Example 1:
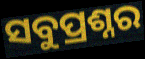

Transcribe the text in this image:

ସବୁପ୍ରଶ୍ନର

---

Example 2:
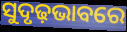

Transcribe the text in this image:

ସୁଦୃଢ଼ଭାବରେ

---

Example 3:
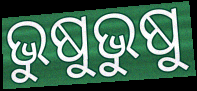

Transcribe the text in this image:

ଭୁଷୁଭୁଷୁ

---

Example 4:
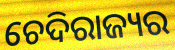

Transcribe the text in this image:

ଚେଦିରାଜ୍ୟର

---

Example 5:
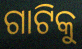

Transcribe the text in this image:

ଗାଟିକୁ